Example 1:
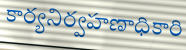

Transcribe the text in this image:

కార్యనిర్వహణాధికారి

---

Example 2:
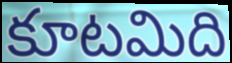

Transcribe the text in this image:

కూటమిది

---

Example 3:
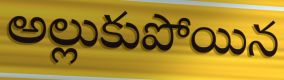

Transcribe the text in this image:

అల్లుకుపోయిన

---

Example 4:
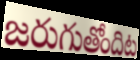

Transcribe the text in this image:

జరుగుతోందిట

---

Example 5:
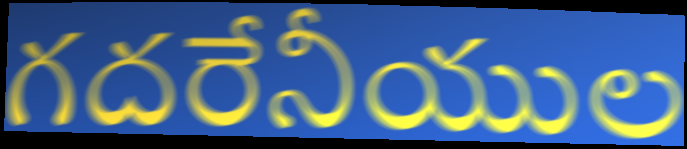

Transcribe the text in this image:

గదరేనీయుల